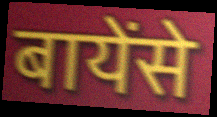
बायेंसे